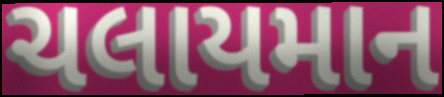
ચલાયમાન